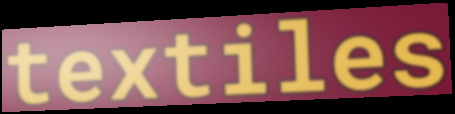
textiles